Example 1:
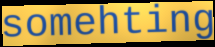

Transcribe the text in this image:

somehting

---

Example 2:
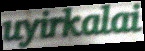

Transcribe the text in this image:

uyirkalai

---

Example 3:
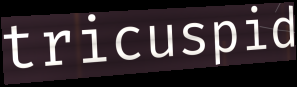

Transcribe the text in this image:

tricuspid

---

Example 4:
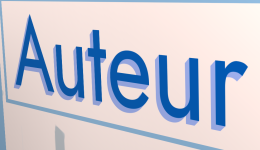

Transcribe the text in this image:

Auteur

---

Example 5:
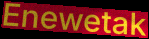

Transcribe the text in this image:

Enewetak